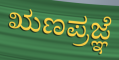
ಋಣಪ್ರಜ್ಞೆ